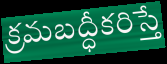
క్రమబద్ధీకరిస్తే